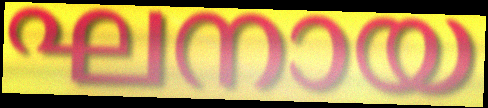
ഘനായ